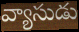
వ్యాసుడు